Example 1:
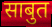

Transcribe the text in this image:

साबुत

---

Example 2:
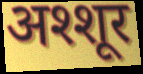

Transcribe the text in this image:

अश्शूर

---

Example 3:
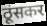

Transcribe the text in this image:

ठूंसकर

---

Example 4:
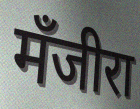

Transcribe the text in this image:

मँजीरा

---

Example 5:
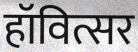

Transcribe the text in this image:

हॉवित्सर